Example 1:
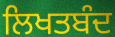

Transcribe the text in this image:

ਲਿਖਤਬੰਦ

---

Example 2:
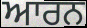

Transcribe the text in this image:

ਆਰਨ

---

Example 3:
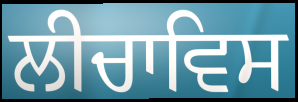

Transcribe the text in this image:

ਲੀਚਾਵਿਸ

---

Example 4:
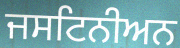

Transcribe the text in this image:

ਜਸਟਿਨੀਅਨ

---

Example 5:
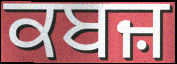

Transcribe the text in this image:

ਕਬਜ਼